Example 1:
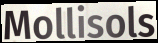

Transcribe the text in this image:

Mollisols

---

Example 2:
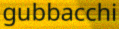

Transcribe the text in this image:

gubbacchi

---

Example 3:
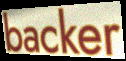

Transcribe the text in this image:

backer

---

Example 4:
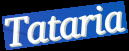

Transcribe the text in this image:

Tataria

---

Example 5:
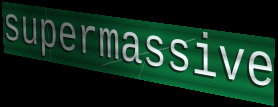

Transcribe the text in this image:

supermassive